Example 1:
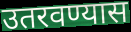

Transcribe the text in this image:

उतरवण्यास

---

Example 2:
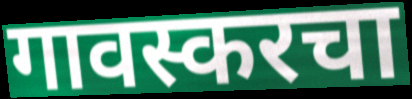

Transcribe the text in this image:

गावस्करचा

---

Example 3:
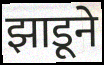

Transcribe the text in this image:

झाडूने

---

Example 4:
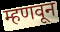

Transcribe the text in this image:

म्हणवून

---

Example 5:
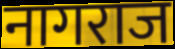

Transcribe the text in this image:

नागराज